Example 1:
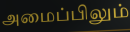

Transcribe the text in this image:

அமைப்பிலும்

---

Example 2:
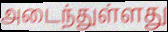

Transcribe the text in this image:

அடைந்துள்ளது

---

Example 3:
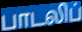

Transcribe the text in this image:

பாடலிப்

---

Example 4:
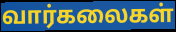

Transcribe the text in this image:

வார்கலைகள்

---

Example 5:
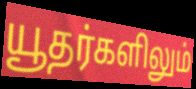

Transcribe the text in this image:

யூதர்களிலும்